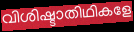
വിശിഷ്ടാതിഥികളേ